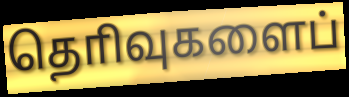
தெரிவுகளைப்